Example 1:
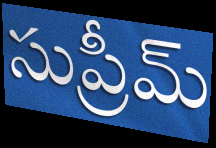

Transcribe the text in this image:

సుప్రీమ్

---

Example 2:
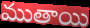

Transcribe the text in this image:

ముతాయి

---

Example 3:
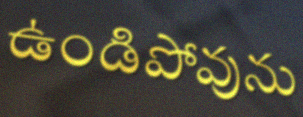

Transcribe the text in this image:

ఉండిపోవును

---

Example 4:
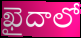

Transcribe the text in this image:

ఖైదాలో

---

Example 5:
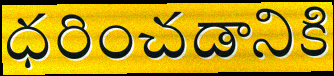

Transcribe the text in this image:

ధరించడానికి